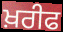
ਖ਼ਰੀਫ